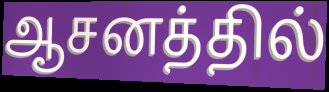
ஆசனத்தில்